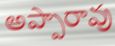
అప్పారావు